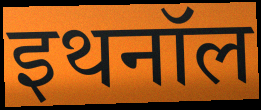
इथनॉल